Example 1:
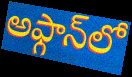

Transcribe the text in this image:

అఫ్గాన్‌లో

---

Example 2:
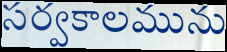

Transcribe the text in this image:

సర్వకాలమును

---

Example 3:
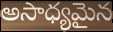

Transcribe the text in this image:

అసాధ్యమైన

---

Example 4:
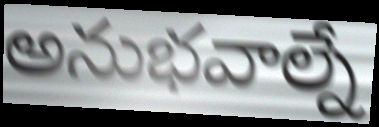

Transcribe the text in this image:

అనుభవాల్నే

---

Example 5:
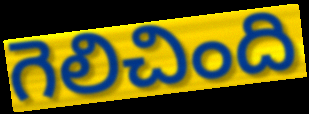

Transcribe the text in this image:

గెలిచింది